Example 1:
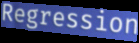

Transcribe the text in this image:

Regression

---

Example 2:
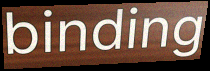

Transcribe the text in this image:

binding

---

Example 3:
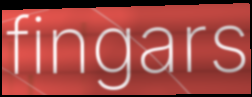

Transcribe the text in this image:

fingars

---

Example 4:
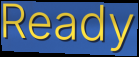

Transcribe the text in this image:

Ready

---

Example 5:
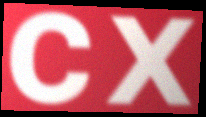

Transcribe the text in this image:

cx